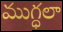
ముగ్ధలా